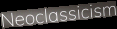
Neoclassicism